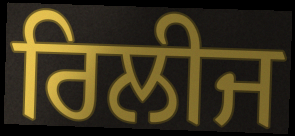
ਰਿਲੀਜ